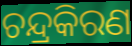
ଚନ୍ଦ୍ରକିରଣ